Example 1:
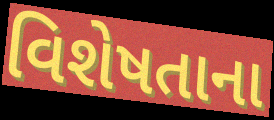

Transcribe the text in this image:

વિશેષતાના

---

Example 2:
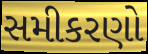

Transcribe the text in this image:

સમીકરણો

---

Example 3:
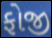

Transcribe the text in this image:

ફોજી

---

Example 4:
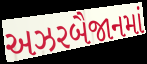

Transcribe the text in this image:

અઝરબૈજાનમાં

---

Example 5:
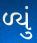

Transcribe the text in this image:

ળ્યું